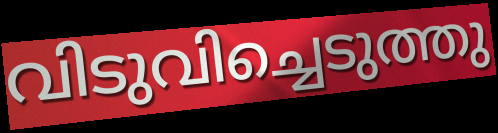
വിടുവിച്ചെടുത്തു